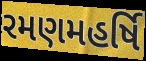
રમણમહર્ષિ